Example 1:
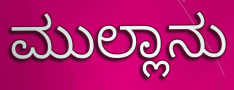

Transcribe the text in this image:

ಮುಲ್ಲಾನು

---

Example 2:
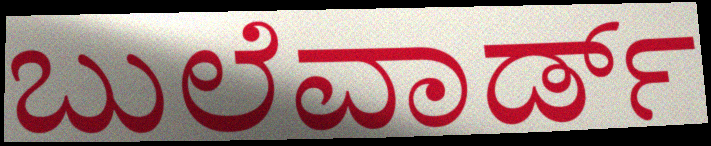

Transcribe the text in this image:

ಬುಲೆವಾರ್ಡ್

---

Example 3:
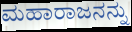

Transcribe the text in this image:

ಮಹಾರಾಜನನ್ನು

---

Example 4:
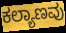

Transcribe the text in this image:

ಕಲ್ಯಾಣವು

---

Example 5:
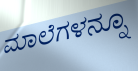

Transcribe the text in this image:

ಮಾಲೆಗಳನ್ನೂ